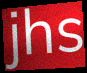
jhs